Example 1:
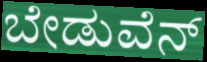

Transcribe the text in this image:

ಬೇಡುವೆನ್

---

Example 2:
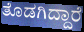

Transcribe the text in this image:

ತೊಡಗಿದ್ದಾರೆ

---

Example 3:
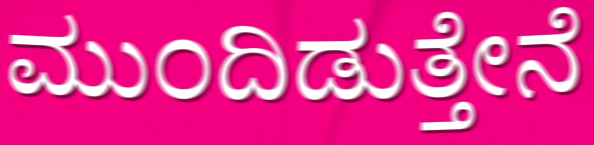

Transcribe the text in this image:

ಮುಂದಿಡುತ್ತೇನೆ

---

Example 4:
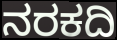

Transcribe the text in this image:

ನರಕದಿ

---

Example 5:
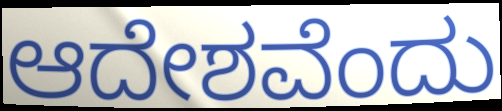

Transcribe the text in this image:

ಆದೇಶವೆಂದು